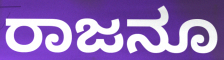
ರಾಜನೂ